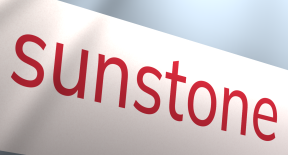
sunstone